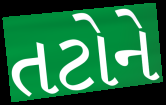
તટોને